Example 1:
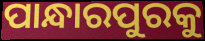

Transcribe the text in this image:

ପାନ୍ଧାରପୁରକୁ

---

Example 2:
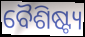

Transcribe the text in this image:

ବୈଶିଷ୍ଟ୍ୟ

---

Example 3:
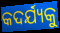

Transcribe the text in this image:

କଦର୍ଯ୍ୟକୁ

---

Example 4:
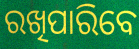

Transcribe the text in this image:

ରଖିପାରିବେ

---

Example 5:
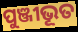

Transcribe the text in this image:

ପୁଞ୍ଜୀଭୂତ